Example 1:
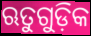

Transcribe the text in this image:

ଋତୁଗୁଡ଼ିକ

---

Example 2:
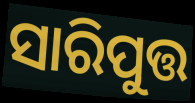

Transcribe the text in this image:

ସାରିପୁତ୍ତ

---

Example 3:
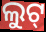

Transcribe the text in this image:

ଲୁଟ୍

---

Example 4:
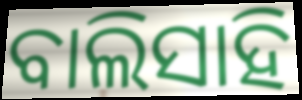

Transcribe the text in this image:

ବାଲିସାହି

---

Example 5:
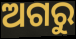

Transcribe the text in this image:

ଅଗରୁ